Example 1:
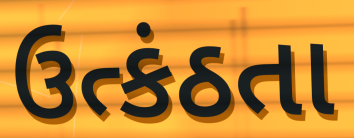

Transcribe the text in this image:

ઉત્કંઠતા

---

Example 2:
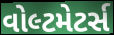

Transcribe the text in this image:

વોલ્ટમેટર્સ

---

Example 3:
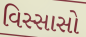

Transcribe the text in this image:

વિસ્સાસો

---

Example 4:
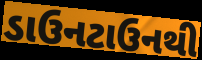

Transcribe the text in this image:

ડાઉનટાઉનથી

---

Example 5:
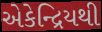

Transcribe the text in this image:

એકેન્દ્રિયથી